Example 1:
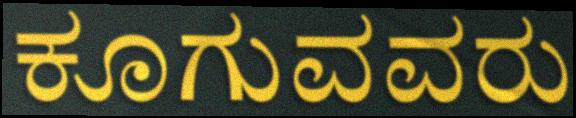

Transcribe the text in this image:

ಕೂಗುವವರು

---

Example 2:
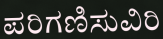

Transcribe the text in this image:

ಪರಿಗಣಿಸುವಿರಿ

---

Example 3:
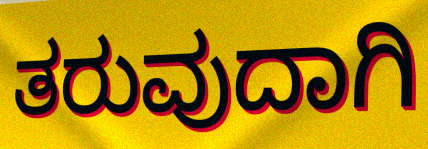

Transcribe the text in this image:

ತರುವುದಾಗಿ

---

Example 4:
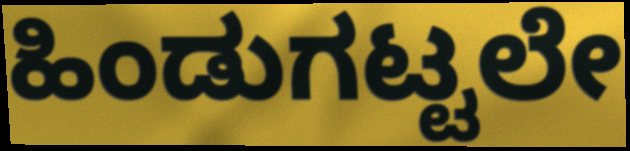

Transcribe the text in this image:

ಹಿಂಡುಗಟ್ಟಲೇ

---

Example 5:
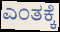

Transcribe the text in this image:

ಎಂತಕ್ಕೆ